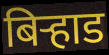
बिऱ्हाड